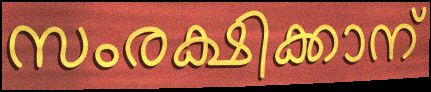
സംരക്ഷിക്കാന്